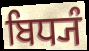
ਬਿਧ੍ਯੰ